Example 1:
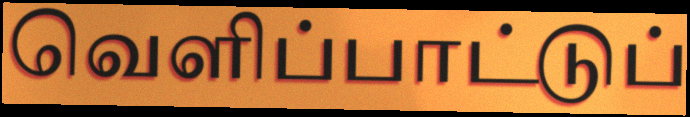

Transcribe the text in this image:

வெளிப்பாட்டுப்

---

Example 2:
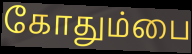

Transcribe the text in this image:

கோதும்பை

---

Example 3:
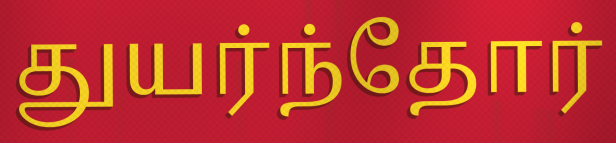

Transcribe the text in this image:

துயர்ந்தோர்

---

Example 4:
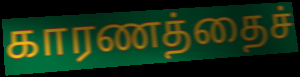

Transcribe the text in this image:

காரணத்தைச்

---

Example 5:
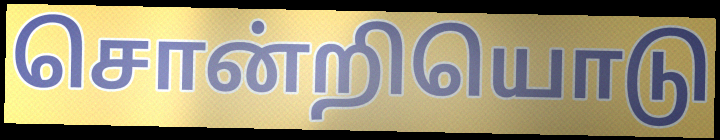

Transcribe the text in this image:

சொன்றியொடு